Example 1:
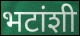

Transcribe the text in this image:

भटांशी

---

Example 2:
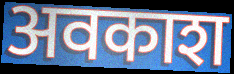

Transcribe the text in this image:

अवकाश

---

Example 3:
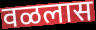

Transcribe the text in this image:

वळलास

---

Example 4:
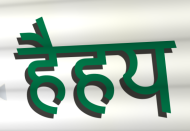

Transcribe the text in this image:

हैहय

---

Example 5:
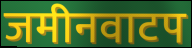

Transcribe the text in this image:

जमीनवाटप